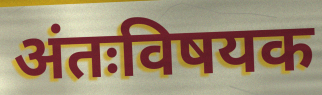
अंतःविषयक